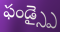
ఫండ్స్పై